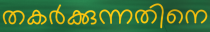
തകർക്കുന്നതിനെ